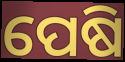
ପେଷି